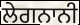
ਲੇਗਨਾਨੀ